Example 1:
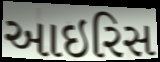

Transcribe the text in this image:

આઇરિસ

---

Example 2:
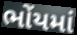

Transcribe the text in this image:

ભોંયમાં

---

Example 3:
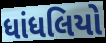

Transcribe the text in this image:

ધાંધલિયો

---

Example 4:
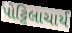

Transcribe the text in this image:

પોટ્ટિલાચાર્ય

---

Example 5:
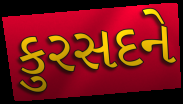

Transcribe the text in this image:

કુરસદને